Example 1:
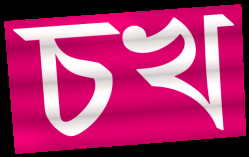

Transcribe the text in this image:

চখ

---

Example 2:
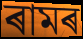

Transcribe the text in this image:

ৰামৰ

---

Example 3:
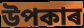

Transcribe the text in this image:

উপকাৰ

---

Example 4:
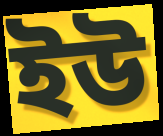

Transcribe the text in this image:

ইউ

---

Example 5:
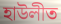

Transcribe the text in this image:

হাউলীত